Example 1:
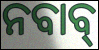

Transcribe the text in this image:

ନବାବ୍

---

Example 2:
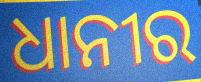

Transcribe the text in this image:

ଧାନୀର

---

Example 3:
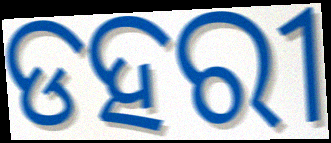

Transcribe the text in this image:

ଡହରୀ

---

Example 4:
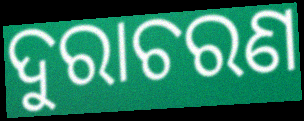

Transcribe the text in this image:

ଦୁରାଚରଣ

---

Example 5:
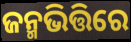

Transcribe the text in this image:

ଜନ୍ମଭିତ୍ତିରେ